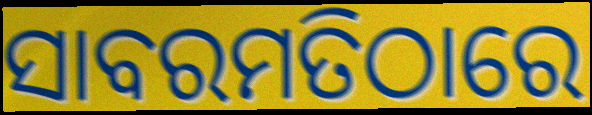
ସାବରମତିଠାରେ